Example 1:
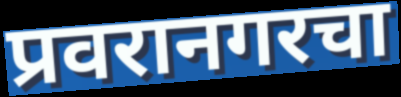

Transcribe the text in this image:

प्रवरानगरचा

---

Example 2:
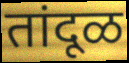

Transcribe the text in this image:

तांदूळ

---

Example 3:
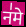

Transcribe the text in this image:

न॑मे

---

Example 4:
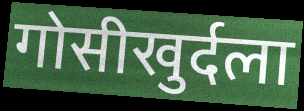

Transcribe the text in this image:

गोसीखुर्दला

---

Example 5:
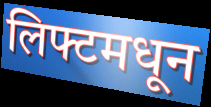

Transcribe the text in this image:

लिफ्टमधून